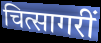
चित्सागरीं